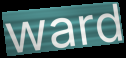
ward